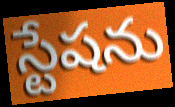
స్టేషను